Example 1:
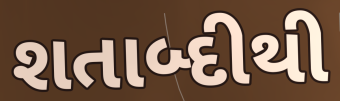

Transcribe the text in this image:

શતાબ્દીથી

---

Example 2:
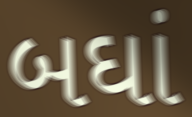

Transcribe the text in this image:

બઘાં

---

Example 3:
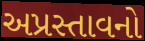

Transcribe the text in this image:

અપ્રસ્તાવનો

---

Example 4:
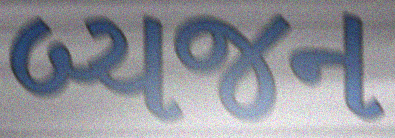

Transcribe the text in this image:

બ્યજન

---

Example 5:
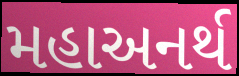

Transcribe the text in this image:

મહાઅનર્થ